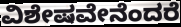
ವಿಶೇಷವೇನೆಂದರೆ